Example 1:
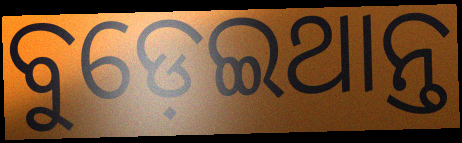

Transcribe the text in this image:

ବୁଡ଼େଇଥାନ୍ତ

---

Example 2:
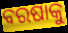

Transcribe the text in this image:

ବରଷାକୁ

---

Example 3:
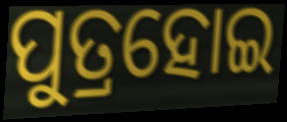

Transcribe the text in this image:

ପୁତ୍ରହୋଇ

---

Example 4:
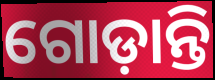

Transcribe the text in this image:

ଗୋଡ଼ାନ୍ତି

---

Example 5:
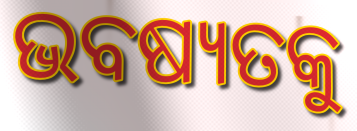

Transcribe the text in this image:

ଭବଷ୍ୟତକୁ